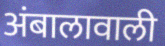
अंबालावाली